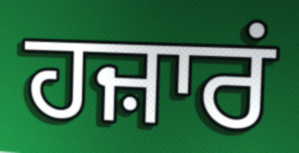
ਹਜ਼ਾਰਂ